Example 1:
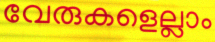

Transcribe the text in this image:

വേരുകളെല്ലാം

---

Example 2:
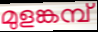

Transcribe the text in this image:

മുളങ്കമ്പ്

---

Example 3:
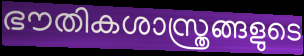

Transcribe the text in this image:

ഭൗതികശാസ്ത്രങ്ങളുടെ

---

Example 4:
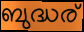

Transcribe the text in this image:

ബുദ്ധര്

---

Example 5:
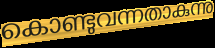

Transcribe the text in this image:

കൊണ്ടുവന്നതാകുന്നു